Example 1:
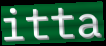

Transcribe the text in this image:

itta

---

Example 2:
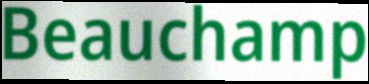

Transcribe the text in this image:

Beauchamp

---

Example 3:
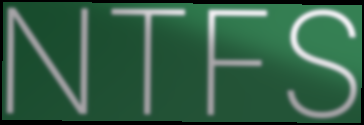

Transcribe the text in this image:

NTFS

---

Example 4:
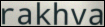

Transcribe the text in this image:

rakhva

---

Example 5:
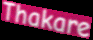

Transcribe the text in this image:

Thakare